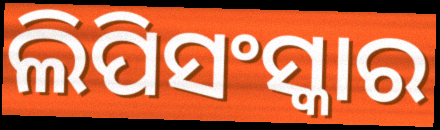
ଲିପିସଂସ୍କାର